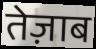
तेज़ाब